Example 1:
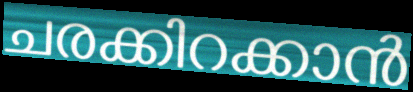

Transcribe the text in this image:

ചരക്കിറക്കാൻ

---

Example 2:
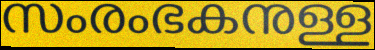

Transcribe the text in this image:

സംരംഭകനുള്ള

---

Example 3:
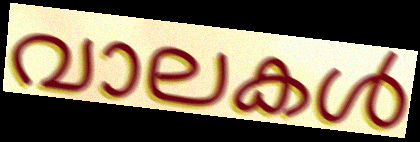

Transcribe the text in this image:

വാലകൾ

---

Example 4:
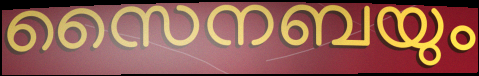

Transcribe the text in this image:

സൈനബയും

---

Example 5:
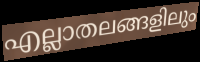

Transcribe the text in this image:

എല്ലാതലങ്ങളിലും